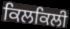
ਕਿਲਕਿਲੀ